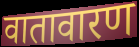
वातावारण